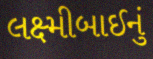
લક્ષ્મીબાઈનું